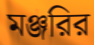
মঞ্জরির